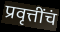
प्रवृत्तींचं